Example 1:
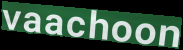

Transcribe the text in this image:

vaachoon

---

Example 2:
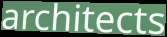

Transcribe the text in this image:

architects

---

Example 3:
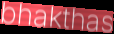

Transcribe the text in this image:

bhakthas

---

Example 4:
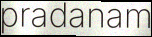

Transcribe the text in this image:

pradanam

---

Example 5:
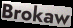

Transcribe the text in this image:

Brokaw